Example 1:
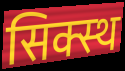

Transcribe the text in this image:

सिक्स्थ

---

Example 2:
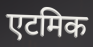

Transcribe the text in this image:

एटमिक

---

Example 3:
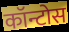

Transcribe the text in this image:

कॉन्टोस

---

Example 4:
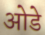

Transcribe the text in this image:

ओडे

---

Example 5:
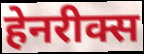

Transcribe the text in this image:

हेनरीक्स